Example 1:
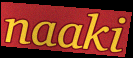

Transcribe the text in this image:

naaki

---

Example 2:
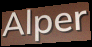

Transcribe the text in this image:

Alper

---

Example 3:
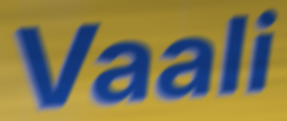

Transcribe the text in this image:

Vaali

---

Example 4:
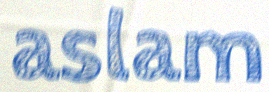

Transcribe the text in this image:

aslam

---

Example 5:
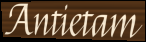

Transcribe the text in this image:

Antietam